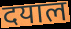
दयाल